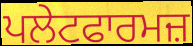
ਪਲੇਟਫਾਰਮਜ਼